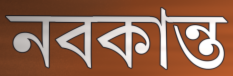
নবকান্ত